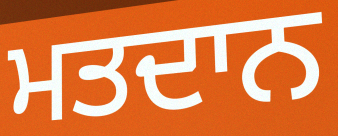
ਮਤਦਾਨ